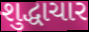
શુદ્ધાચાર